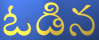
ఓడిన